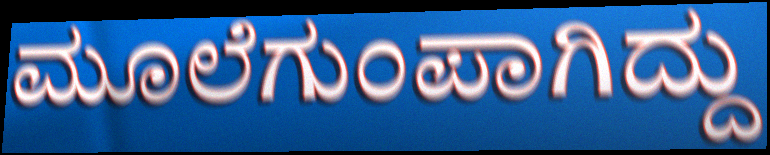
ಮೂಲೆಗುಂಪಾಗಿದ್ದು